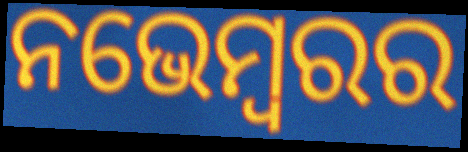
ନଭେମ୍ବରର